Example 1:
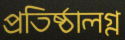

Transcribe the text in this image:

প্রতিষ্ঠালগ্ন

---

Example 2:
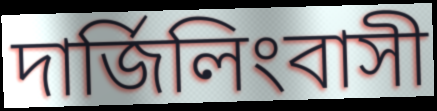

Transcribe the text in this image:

দার্জিলিংবাসী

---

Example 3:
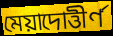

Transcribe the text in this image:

মেয়াদোত্তীর্ণ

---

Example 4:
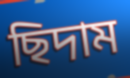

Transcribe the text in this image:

ছিদাম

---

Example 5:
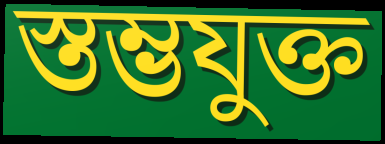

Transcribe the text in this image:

স্তম্ভযুক্ত